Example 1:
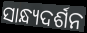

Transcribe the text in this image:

ସାନ୍ଧ୍ୟଦର୍ଶନ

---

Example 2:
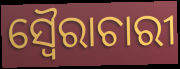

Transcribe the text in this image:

ସ୍ୱୈରାଚାରୀ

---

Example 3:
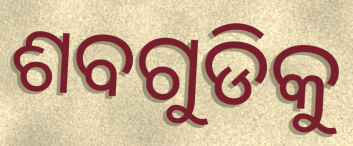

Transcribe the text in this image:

ଶବଗୁଡିକୁ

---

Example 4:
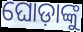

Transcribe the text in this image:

ଘୋଡ଼ାଙ୍କୁ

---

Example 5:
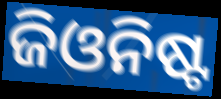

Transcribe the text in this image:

ଜିଓନିଷ୍ଟ